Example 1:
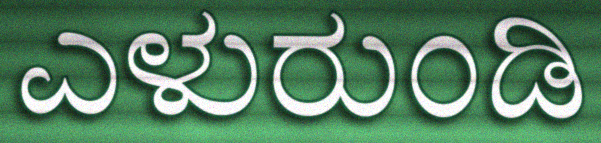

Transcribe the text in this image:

ಎಳುರುಂಡಿ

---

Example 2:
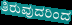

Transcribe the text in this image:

ತಿರುವುದರಿಂದ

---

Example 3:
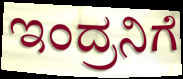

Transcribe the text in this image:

ಇಂದ್ರನಿಗೆ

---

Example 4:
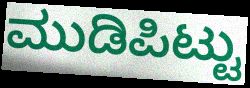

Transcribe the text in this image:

ಮುಡಿಪಿಟ್ಟು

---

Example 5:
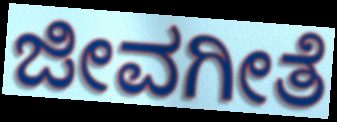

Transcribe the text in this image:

ಜೀವಗೀತೆ